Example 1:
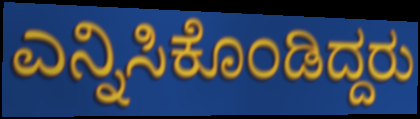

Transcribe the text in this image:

ಎನ್ನಿಸಿಕೊಂಡಿದ್ದರು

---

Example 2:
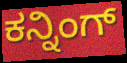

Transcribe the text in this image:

ಕನ್ನಿಂಗ್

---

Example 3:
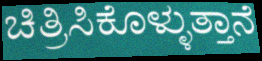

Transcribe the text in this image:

ಚಿತ್ರಿಸಿಕೊಳ್ಳುತ್ತಾನೆ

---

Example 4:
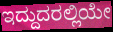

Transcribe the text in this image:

ಇದ್ದುದರಲ್ಲಿಯೇ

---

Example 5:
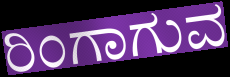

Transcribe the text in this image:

ರಿಂಗಾಗುವ